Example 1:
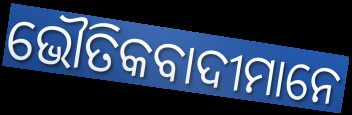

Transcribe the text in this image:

ଭୌତିକବାଦୀମାନେ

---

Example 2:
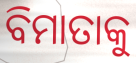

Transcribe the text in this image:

ବିମାତାକୁ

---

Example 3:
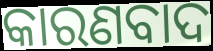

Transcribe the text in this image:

କାରଣବାଦ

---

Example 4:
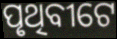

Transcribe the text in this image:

ପୃଥିବୀଟେ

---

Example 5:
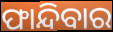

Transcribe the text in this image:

ଫାନ୍ଦିବାର